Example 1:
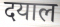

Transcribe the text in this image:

दयाल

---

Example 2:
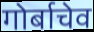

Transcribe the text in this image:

गोर्बाचेव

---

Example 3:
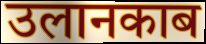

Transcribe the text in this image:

उलानकाब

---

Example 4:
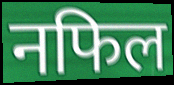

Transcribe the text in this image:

नफिल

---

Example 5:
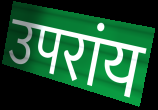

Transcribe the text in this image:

उपरांय